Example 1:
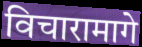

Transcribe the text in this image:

विचारामागे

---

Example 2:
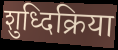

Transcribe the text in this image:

शुध्दिक्रिया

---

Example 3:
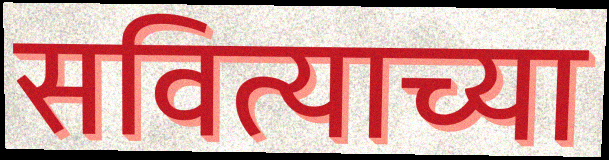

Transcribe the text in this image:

सवित्याच्या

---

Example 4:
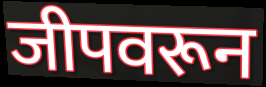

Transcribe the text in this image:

जीपवरून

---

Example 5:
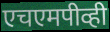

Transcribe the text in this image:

एचएमपीव्ही